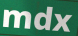
mdx